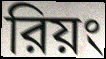
রিয়ং